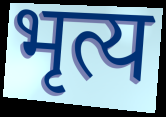
भृत्य